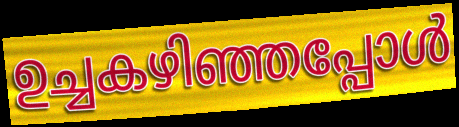
ഉച്ചകഴിഞ്ഞപ്പോൾ